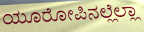
ಯೂರೋಪಿನಲ್ಲೆಲ್ಲಾ